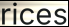
rices